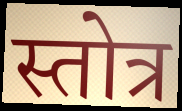
स्तोत्र